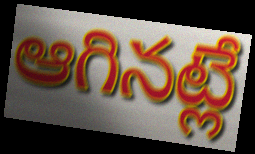
ఆగినట్లే